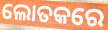
ଲୋତକରେ